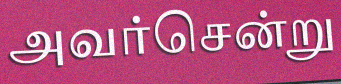
அவர்சென்று